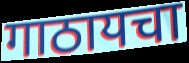
गाठायचा